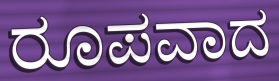
ರೂಪವಾದ